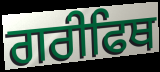
ਗਰੀਫਿਥ